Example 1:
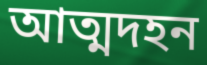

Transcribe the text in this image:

আত্মদহন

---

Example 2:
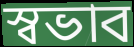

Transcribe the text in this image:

স্বভাব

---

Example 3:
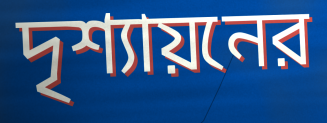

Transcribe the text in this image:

দৃশ্যায়নের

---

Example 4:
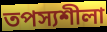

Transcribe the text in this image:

তপস্যশীলা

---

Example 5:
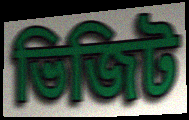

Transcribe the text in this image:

ভিজিট